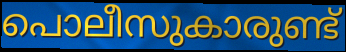
പൊലീസുകാരുണ്ട്